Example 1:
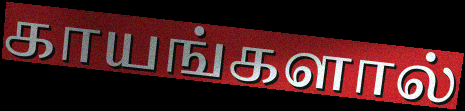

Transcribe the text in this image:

காயங்களால்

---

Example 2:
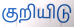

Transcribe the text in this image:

குறியிடு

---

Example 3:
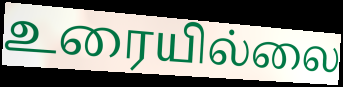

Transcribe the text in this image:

உரையில்லை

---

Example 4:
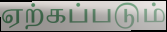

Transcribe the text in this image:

ஏற்கப்படும்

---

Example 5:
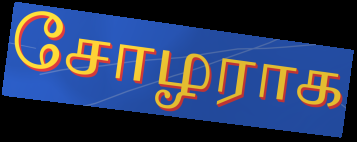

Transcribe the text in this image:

சோழராக